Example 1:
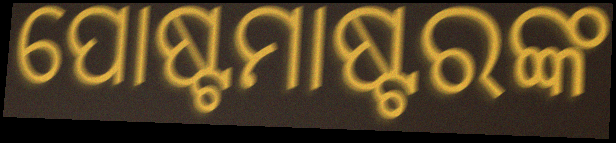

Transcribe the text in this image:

ପୋଷ୍ଟମାଷ୍ଟରଙ୍କ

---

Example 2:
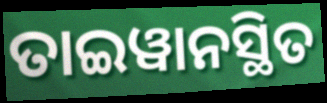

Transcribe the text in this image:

ତାଇୱାନସ୍ଥିତ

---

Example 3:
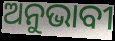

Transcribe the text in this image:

ଅନୁଭାବୀ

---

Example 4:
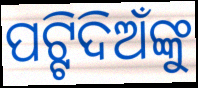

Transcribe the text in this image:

ପଟ୍ଟିଦିଅଁଙ୍କୁ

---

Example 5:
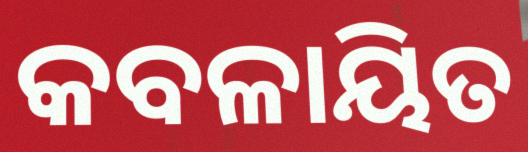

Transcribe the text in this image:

କବଳାୟିତ